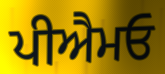
ਪੀਐਮਓ